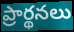
ప్రార్థనలు